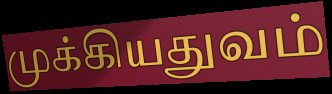
முக்கியதுவம்